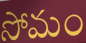
సోమం